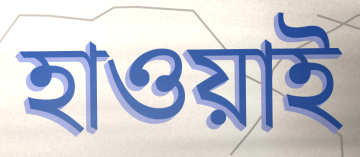
হাওয়াই